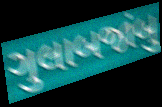
ગુલાબજાંબુ